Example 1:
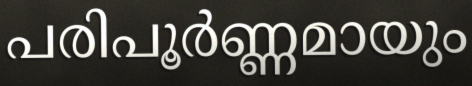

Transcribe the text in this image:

പരിപൂർണ്ണമായും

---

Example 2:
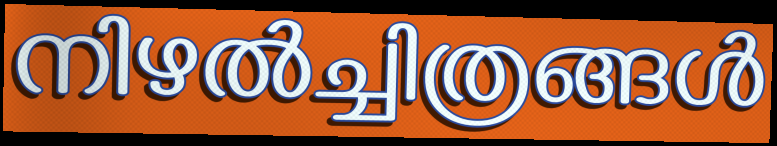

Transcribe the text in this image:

നിഴൽച്ചിത്രങ്ങൾ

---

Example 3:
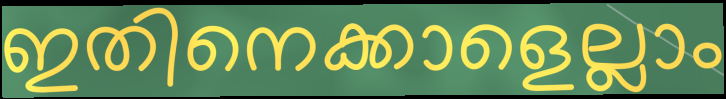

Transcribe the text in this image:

ഇതിനെക്കാളെല്ലാം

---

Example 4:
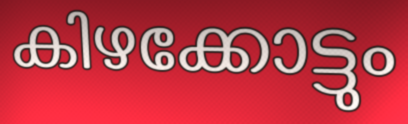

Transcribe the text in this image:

കിഴക്കോട്ടും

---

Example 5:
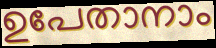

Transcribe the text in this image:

ഉപേതാനാം